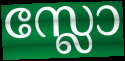
സ്ലോ